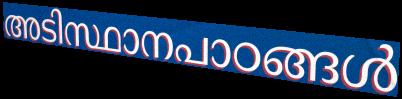
അടിസ്ഥാനപാഠങ്ങൾ